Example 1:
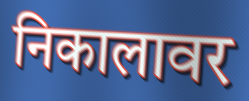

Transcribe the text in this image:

निकालावर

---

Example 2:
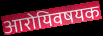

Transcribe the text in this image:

आरोयिवषयक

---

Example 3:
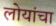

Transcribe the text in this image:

लोयांचा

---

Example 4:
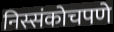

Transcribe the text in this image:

निस्संकोचपणे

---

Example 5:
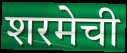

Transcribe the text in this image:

शरमेची